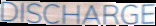
DISCHARGE